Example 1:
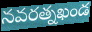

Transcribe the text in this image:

నవరత్నఖండ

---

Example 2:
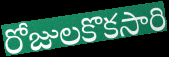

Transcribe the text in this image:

రోజులకొకసారి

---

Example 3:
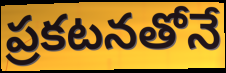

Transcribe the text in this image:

ప్రకటనతోనే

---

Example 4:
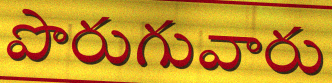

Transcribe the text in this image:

పొరుగువారు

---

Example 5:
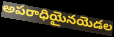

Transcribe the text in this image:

అపరాధియైనయెడల